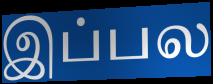
இப்பல